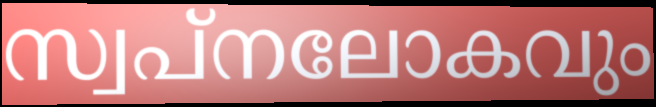
സ്വപ്നലോകവും